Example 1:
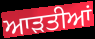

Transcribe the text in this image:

ਆਡ਼ਤੀਆਂ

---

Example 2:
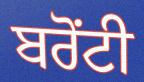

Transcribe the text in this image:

ਬਰੋਂਟੀ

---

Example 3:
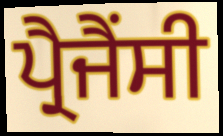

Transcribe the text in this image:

ਪ੍ਰੈਜੈਂਸੀ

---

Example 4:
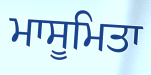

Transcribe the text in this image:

ਮਾਸੂਮਿਤਾ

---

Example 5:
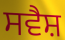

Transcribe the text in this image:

ਸਵੈਸ਼